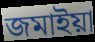
জমাইয়া